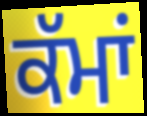
ਕੱਮਾਂ